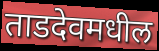
ताडदेवमधील